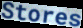
Stores